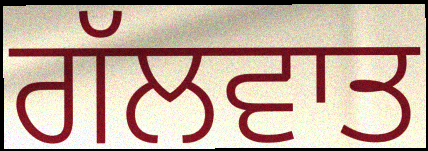
ਗੱਲਵਾਤ